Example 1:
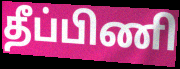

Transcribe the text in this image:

தீப்பிணி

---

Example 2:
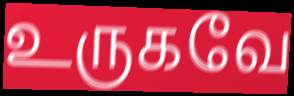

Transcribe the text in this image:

உருகவே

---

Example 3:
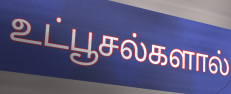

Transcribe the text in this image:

உட்பூசல்களால்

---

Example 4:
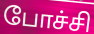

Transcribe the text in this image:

போச்சி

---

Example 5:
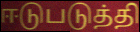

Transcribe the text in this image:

ஈடுபடுத்தி